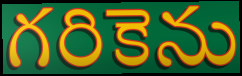
గరికెను